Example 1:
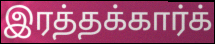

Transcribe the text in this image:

இரத்தக்கார்க்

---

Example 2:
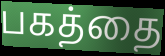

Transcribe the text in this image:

பகத்தை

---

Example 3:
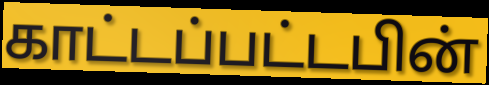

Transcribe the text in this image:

காட்டப்பட்டபின்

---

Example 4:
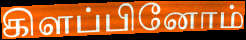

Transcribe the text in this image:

கிளப்பினோம்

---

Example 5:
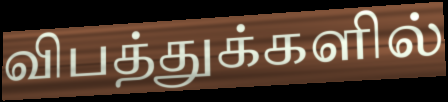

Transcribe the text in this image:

விபத்துக்களில்